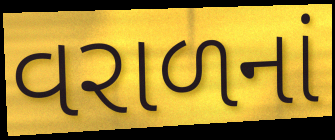
વરાળનાં